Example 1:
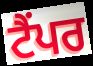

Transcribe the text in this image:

ਟੈਂਪਰ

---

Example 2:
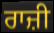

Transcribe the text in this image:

ਰਾਜ਼ੀ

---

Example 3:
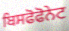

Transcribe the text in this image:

ਬਿਸਫੋਫੋਨੇਟ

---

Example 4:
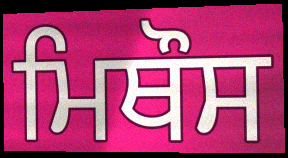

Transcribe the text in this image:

ਮਿਥੌਸ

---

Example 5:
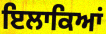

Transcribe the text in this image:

ਇਲਾਕਿਆਂ